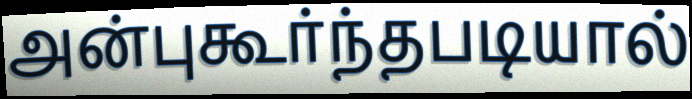
அன்புகூர்ந்தபடியால்